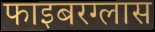
फाइबरग्लास